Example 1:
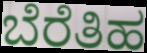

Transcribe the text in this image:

ಬೆರೆತಿಹ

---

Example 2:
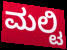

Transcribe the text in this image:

ಮಲ್ಟಿ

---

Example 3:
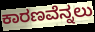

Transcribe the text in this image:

ಕಾರಣವೆನ್ನಲು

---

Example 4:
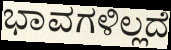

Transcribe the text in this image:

ಭಾವಗಳಿಲ್ಲದೆ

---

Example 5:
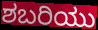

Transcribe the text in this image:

ಶಬರಿಯು